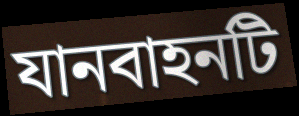
যানবাহনটি